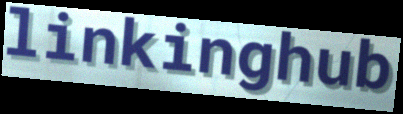
linkinghub